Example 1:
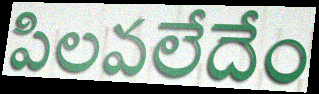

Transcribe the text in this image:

పిలవలేదేం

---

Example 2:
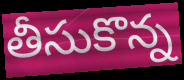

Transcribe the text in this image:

తీసుకొన్న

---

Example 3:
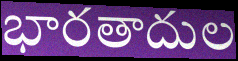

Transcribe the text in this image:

భారతాదుల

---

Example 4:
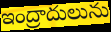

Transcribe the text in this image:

ఇంద్రాదులును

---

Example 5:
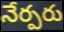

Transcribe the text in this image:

నేర్పరు